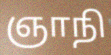
ஞாநி